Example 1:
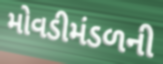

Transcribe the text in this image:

મોવડીમંડળની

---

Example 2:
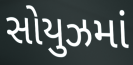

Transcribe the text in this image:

સોયુઝમાં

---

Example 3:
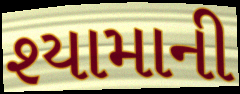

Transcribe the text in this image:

શ્યામાની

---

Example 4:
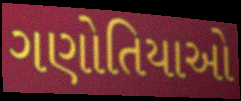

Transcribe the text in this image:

ગણોતિયાઓ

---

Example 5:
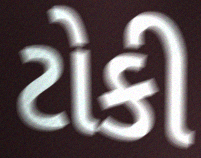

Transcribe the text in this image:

ટોકી